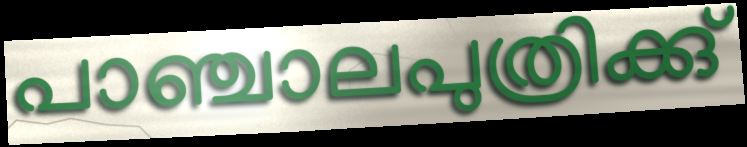
പാഞ്ചാലപുത്രിക്കു്